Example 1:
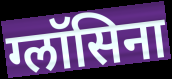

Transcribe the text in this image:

ग्लॉसिना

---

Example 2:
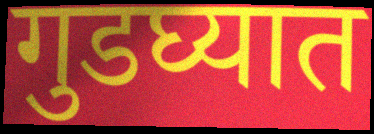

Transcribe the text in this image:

गुडघ्यात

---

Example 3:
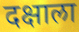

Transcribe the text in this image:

दक्षाला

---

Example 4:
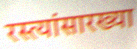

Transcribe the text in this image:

रस्त्यांसारख्या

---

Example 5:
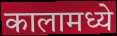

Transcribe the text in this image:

कालामध्ये